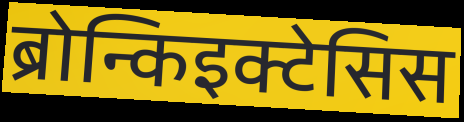
ब्रोन्किइक्टेसिस